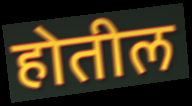
होतील